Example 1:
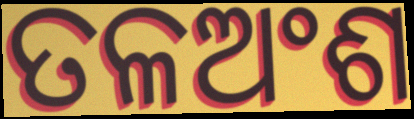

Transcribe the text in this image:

ତଳଅଂଶ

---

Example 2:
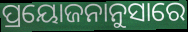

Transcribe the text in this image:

ପ୍ରୟୋଜନାନୁସାରେ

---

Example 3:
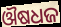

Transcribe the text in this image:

ଔଷଧଜ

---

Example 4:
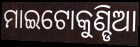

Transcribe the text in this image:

ମାଇଟୋକୁଣ୍ଡିଆ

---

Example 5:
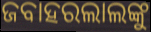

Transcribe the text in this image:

ଜବାହରଲାଲଙ୍କୁ